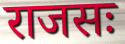
राजसः